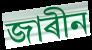
জাৰীন